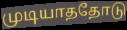
முடியாததோடு